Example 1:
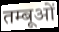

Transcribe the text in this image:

तम्बूओं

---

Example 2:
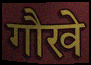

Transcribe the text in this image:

गौखे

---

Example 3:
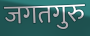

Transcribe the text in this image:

जगतगुरु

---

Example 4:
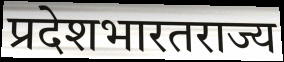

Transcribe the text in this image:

प्रदेशभारतराज्य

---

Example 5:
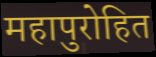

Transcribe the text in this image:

महापुरोहित